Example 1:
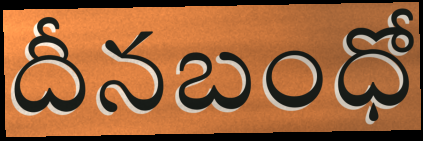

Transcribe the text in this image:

దీనబంధో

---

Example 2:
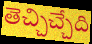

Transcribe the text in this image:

తెచ్చిచ్చేది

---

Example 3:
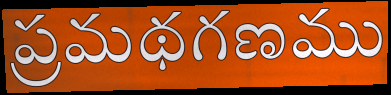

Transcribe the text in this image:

ప్రమథగణము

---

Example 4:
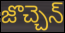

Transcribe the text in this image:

జొచ్చెన్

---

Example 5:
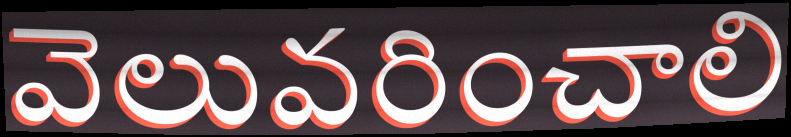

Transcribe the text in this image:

వెలువరించాలి